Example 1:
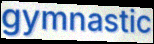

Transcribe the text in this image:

gymnastic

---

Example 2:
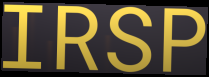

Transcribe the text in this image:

IRSP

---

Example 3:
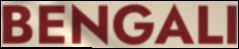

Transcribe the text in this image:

BENGALI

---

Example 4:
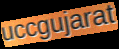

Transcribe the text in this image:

uccgujarat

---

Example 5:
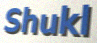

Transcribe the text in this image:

Shukl